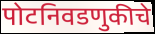
पोटनिवडणुकीचे